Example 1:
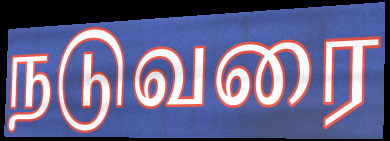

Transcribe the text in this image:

நடுவரை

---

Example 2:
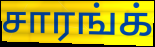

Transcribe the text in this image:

சாரங்க்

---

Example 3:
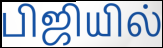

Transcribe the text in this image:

பிஜியில்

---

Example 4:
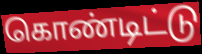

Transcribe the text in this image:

கொண்டிட்டு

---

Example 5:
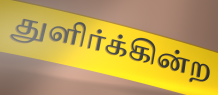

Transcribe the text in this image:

துளிர்க்கின்ற